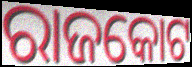
ରାଜକୋଟ